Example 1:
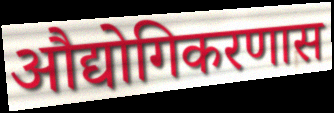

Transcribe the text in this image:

औद्योगिकरणास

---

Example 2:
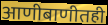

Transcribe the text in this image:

आणीबाणीतही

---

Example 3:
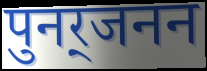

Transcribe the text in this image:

पुनर्जनन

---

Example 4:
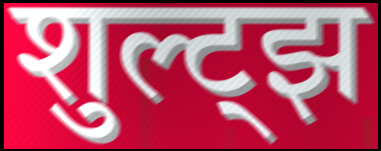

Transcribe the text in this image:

शुल्ट्झ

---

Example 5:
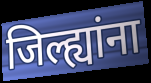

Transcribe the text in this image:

जिल्ह्यांना